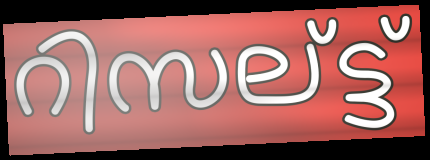
റിസല്ട്ട്